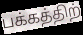
பக்கத்திற்